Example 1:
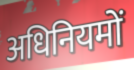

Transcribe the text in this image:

अधिनियमों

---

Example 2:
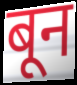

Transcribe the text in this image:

बून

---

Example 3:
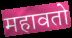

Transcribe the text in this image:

महावतो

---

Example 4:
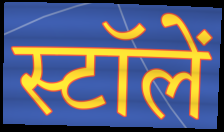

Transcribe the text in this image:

स्टॉलें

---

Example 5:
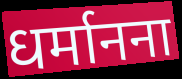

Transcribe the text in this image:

धर्मानना